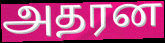
அதரன